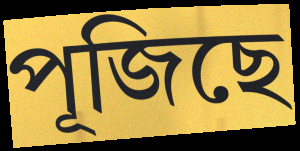
পূজিছে